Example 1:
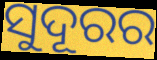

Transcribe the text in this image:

ସୁଦୂରର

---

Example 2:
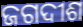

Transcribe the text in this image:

ଜଗଦୀଶ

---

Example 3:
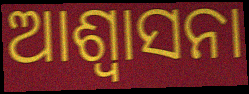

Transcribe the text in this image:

ଆଶ୍ଵାସନା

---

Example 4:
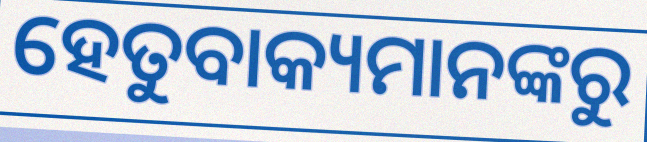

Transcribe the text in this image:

ହେତୁବାକ୍ୟମାନଙ୍କରୁ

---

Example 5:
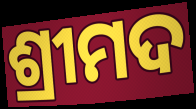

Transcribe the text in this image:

ଶ୍ରୀମଦ